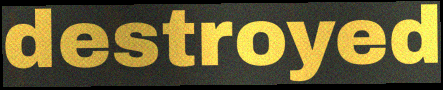
destroyed